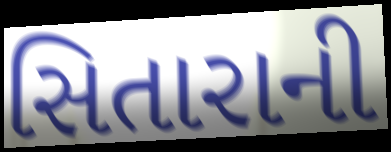
સિતારાની